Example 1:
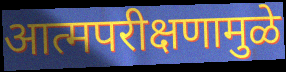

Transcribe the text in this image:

आत्मपरीक्षणामुळे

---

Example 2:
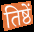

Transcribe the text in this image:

तिष्ठें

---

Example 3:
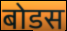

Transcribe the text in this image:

बोडस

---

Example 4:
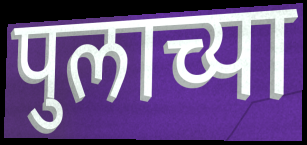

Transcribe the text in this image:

पुलाच्या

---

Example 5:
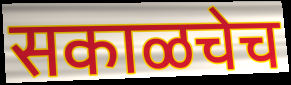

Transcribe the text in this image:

सकाळचेच